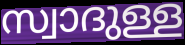
സ്വാദുള്ള